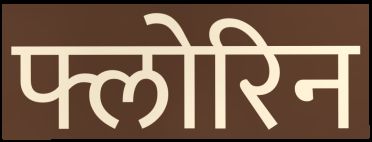
फ्लोरिन